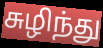
சுழிந்து